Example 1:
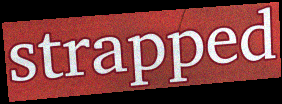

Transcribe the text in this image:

strapped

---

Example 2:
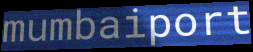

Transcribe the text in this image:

mumbaiport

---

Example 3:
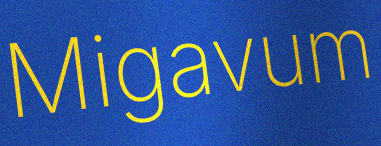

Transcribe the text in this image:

Migavum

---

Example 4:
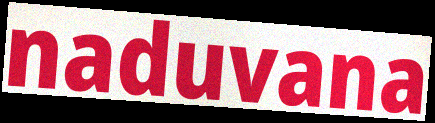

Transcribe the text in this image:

naduvana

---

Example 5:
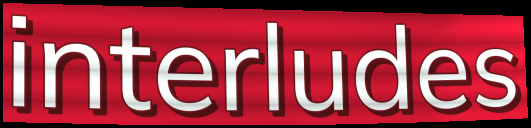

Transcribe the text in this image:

interludes